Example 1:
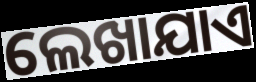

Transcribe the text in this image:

ଲେଖାଯାଏ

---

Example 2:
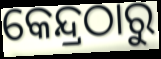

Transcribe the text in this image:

କେନ୍ଦ୍ରଠାରୁ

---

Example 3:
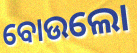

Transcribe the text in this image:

ବୋଉଲୋ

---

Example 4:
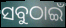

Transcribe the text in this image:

ସବୁଠାଇଁ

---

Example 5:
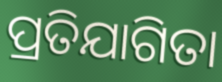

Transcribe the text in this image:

ପ୍ରତିଯାଗିତା